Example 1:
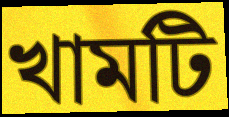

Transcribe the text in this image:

খামটি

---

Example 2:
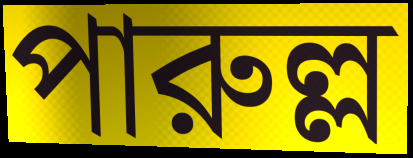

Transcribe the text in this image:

পারুল্ল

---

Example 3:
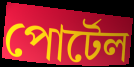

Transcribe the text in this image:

পোর্টেল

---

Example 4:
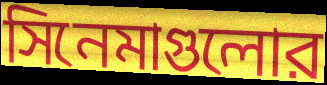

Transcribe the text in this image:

সিনেমাগুলোর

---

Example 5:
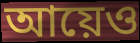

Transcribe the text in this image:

আয়েও